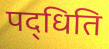
पद्धिति